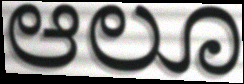
ಆಲೂ